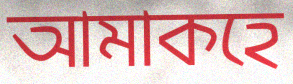
আমাকহে